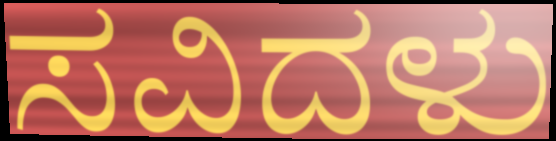
ಸವಿದಳು